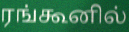
ரங்கூனில்